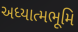
અધ્યાત્મભૂમિ